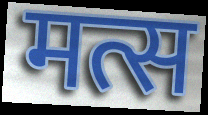
मत्स